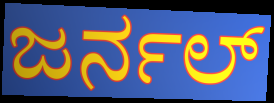
ಜರ್ನಲ್